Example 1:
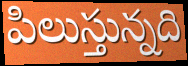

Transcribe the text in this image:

పిలుస్తున్నది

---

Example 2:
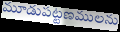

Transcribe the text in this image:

మూడుపట్టణములను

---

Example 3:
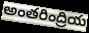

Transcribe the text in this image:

అంతరింద్రియ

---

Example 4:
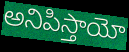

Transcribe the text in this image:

అనిపిస్తాయో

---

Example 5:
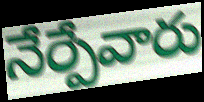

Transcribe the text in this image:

నేర్పేవారు